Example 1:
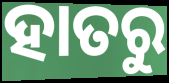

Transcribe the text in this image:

ହାତରୁ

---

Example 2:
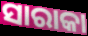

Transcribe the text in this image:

ସାରାକା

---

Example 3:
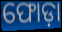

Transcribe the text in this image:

ଫୋଡ଼ା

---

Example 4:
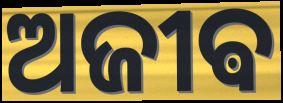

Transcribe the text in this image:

ଅଜୀଵ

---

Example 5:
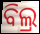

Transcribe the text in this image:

ବିଲ୍ର